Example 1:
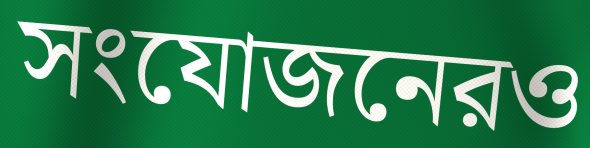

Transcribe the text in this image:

সংযোজনেরও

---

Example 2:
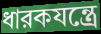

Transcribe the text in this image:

ধারকযন্ত্রে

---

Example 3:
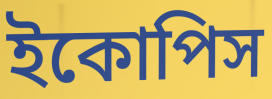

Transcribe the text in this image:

ইকোপিস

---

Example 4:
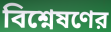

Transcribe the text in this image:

বিশ্নেষণের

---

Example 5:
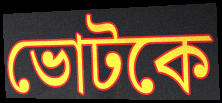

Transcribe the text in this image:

ভোটকে